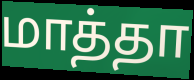
மாத்தா